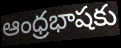
ఆంధ్రభాషకు